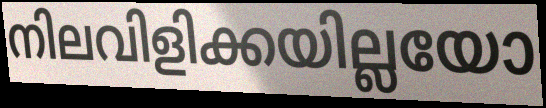
നിലവിളിക്കയില്ലയോ